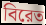
বিরেত